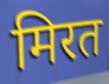
मिरत